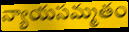
న్యాయసమ్మతం